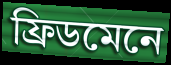
ফ্ৰিডমেনে